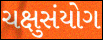
ચક્ષુસંયોગ